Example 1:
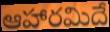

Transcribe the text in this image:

ఆహారమిదే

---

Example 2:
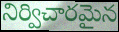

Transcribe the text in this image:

నిర్విచారమైన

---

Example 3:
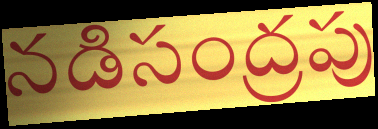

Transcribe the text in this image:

నడిసంద్రపు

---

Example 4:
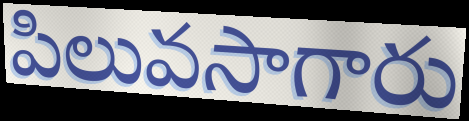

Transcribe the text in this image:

పిలువసాగారు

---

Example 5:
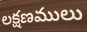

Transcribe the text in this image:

లక్షణములు